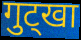
गुट्खा